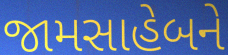
જામસાહેબને